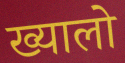
ख्यालो